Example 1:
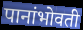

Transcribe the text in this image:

पानांभोवती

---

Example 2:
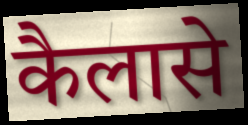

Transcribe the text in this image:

कैलासे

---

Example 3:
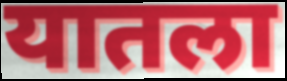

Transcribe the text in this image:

यातला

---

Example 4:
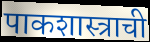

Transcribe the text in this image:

पाकशास्त्राची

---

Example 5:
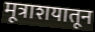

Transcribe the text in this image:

मूत्राशयातून